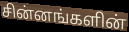
சின்னங்களின்